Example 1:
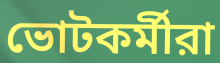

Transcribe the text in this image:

ভোটকর্মীরা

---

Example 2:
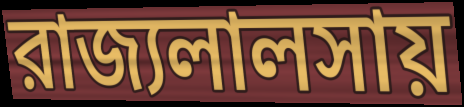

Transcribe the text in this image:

রাজ্যলালসায়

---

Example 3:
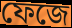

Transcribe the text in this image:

ফেজে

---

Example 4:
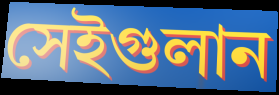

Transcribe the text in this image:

সেইগুলান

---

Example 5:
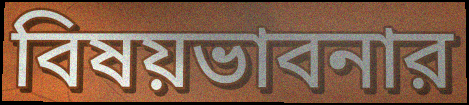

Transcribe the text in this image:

বিষয়ভাবনার